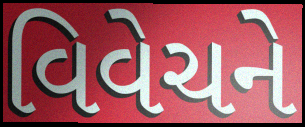
વિવેચને